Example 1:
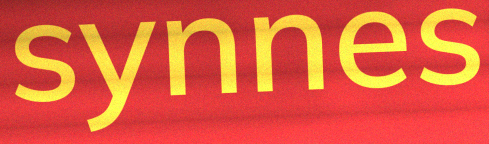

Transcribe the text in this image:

synnes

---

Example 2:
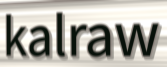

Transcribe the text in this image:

kalraw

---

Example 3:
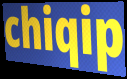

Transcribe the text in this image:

chiqip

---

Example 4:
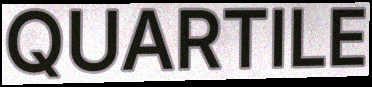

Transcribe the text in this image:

QUARTILE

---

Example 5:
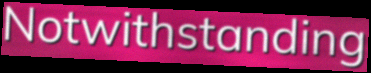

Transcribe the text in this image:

Notwithstanding